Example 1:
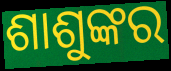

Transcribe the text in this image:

ଶାଶୁଙ୍କର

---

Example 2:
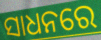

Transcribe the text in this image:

ସାଧନରେ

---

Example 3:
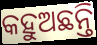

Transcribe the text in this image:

କହୁଅଛନ୍ତି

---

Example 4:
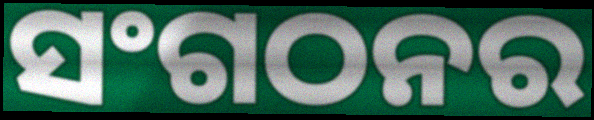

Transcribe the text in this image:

ସଂଗଠନର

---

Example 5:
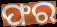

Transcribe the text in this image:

ଫର